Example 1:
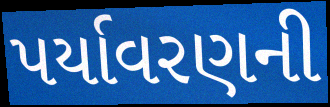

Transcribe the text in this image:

પર્યાવરણની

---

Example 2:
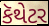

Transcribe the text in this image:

કૅથેટર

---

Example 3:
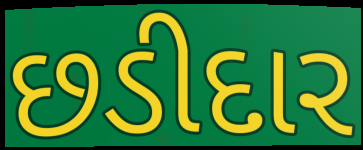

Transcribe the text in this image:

છડીદાર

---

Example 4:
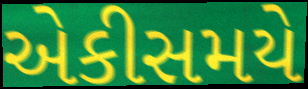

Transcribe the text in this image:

એકીસમયે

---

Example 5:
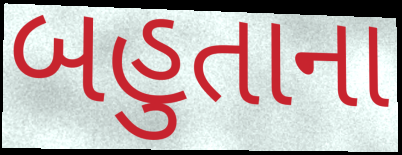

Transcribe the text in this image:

બહુતાના